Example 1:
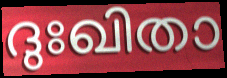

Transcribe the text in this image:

ദുഃഖിതാ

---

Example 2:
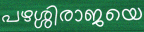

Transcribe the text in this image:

പഴശ്ശിരാജയെ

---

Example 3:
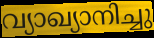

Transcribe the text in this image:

വ്യാഖ്യാനിച്ചു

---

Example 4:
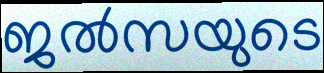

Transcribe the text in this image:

ജൽസയുടെ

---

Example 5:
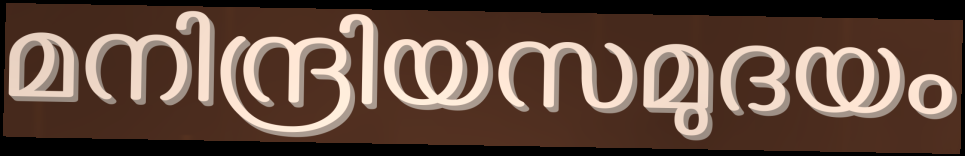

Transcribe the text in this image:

മനിന്ദ്രിയസമുദയം